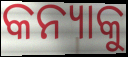
କନ୍ୟାକୁ